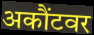
अकौंटवर